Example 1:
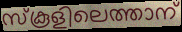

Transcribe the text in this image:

സ്കൂളിലെത്താന്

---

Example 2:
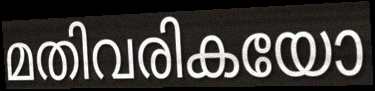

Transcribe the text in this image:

മതിവരികയോ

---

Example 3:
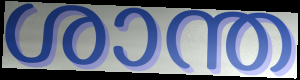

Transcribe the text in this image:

ശാന്ത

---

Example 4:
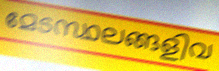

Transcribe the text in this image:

മേടസ്ഥലങ്ങളിവ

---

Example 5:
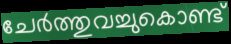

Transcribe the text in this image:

ചേർത്തുവച്ചുകൊണ്ട്